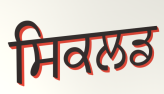
ਸਿਕਲਡ